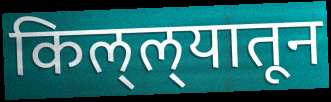
किल्ल्यातून